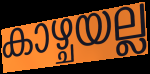
കാഴ്ചയല്ല